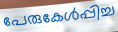
പേരുകേൾപ്പിച്ച